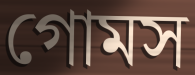
গোমস